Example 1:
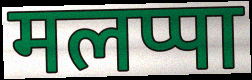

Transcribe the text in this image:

मलप्पा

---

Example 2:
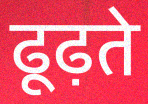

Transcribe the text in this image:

ढूढ़ते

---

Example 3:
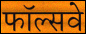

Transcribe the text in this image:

फॉल्सवे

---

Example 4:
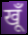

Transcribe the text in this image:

खूँ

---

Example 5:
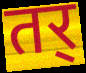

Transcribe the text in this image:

तर्